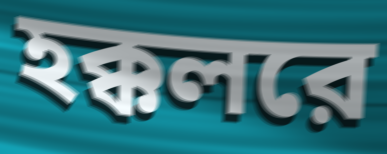
হক্কলরে